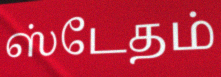
ஸ்டேதம்